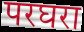
परघरा